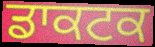
ਡਾਕਟਕ